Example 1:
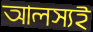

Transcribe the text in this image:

আলস্যই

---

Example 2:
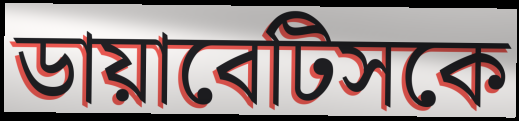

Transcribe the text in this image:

ডায়াবেটিসকে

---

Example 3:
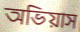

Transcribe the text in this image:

অভিয়াস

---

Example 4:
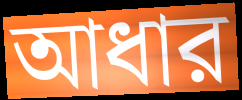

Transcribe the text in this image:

আধার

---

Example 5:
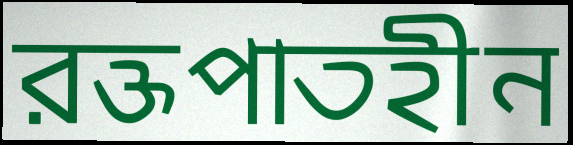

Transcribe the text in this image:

রক্তপাতহীন